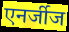
एनर्जीज